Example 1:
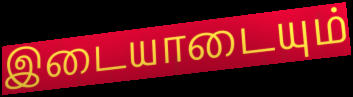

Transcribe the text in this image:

இடையாடையும்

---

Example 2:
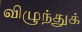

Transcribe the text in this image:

விழுந்துக்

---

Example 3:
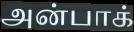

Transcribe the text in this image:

அன்பாக்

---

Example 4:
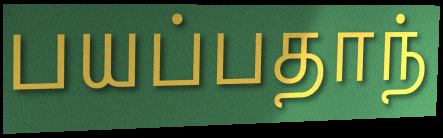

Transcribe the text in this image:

பயப்பதாந்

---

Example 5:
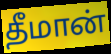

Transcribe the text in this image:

தீமான்